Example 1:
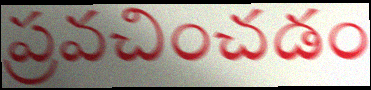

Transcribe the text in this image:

ప్రవచించడం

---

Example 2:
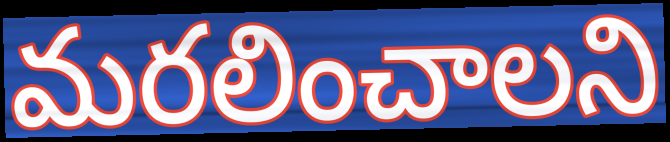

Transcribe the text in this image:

మరలించాలని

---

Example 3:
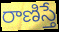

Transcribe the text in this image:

రాణిస్తే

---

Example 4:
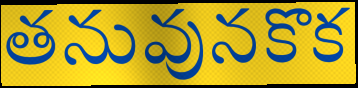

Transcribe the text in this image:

తనువునకొక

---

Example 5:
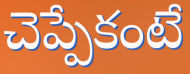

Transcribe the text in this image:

చెప్పేకంటే